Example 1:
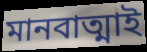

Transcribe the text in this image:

মানবাত্মাই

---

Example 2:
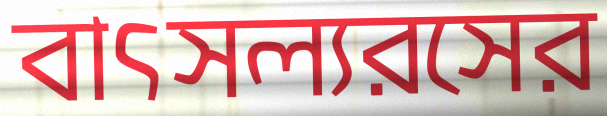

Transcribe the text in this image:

বাৎসল্যরসের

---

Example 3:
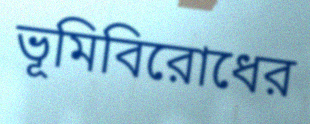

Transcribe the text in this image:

ভূমিবিরোধের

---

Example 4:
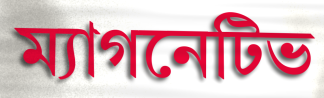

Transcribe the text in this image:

ম্যাগনেটিভ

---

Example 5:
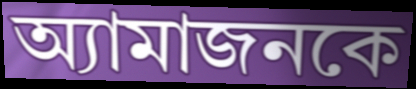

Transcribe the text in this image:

অ্যামাজনকে